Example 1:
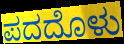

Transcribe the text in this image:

ಪದದೊಳು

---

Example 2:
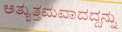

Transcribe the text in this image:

ಅತ್ಯುತ್ತಮವಾದದ್ದನ್ನು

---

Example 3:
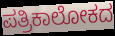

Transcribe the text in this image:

ಪತ್ರಿಕಾಲೋಕದ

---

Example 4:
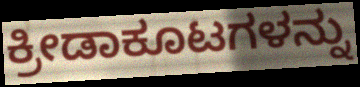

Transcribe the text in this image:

ಕ್ರೀಡಾಕೂಟಗಳನ್ನು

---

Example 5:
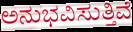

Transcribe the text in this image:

ಅನುಭವಿಸುತ್ತಿವೆ